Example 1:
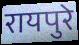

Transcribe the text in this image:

रायपुरे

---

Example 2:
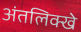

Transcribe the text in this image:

अंतलिक्खे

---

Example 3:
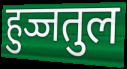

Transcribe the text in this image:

हुज्जतुल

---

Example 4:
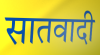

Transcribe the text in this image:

सातवादी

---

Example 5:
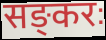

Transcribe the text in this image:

सङ्करः